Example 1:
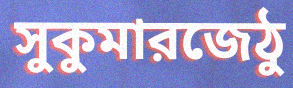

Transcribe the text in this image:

সুকুমারজেঠু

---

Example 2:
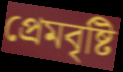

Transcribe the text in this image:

প্রেমবৃষ্টি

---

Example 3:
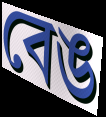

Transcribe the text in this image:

বেঙ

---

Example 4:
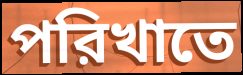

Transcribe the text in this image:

পরিখাতে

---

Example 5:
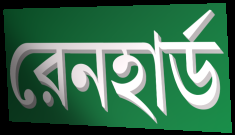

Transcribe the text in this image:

রেনহার্ড